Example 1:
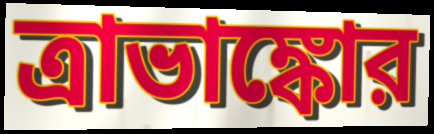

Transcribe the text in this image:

ত্রাভাঙ্কোর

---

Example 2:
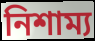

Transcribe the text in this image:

নিশাম্য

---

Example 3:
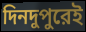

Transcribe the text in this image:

দিনদুপুরেই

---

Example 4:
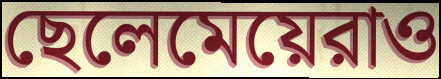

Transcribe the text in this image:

ছেলেমেয়েরাও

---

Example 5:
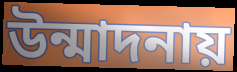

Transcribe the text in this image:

উন্মাদনায়